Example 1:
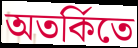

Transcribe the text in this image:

অতর্কিতে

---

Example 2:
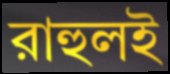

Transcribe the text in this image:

রাহুলই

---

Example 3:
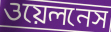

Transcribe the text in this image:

ওয়েলনেস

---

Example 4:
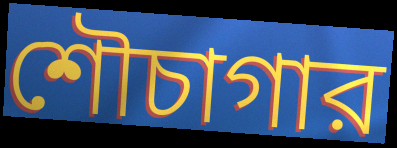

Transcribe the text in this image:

শৌচাগার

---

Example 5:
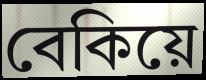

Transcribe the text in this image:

বেকিয়ে